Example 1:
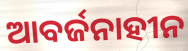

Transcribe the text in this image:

ଆବର୍ଜନାହୀନ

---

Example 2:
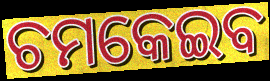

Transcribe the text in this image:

ଚମକେଇବ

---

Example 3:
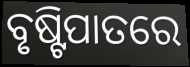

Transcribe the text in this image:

ବୃଷ୍ଟିପାତରେ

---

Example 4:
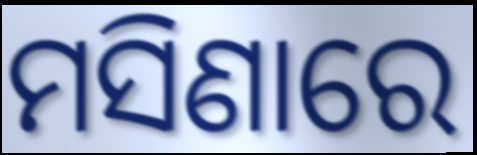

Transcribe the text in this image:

ମସିଣାରେ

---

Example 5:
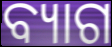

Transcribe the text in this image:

ବ୍ୟାଗ